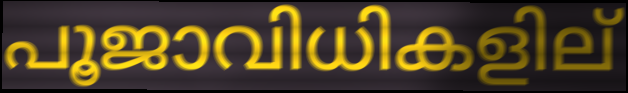
പൂജാവിധികളില്